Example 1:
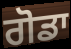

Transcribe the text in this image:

ਗੋਡਾ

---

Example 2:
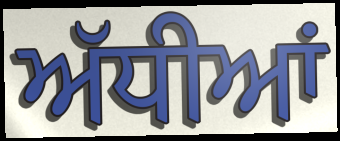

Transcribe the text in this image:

ਅੱਧੀਆਂ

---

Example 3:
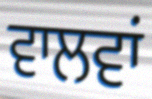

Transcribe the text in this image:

ਵਾਲਵਾਂ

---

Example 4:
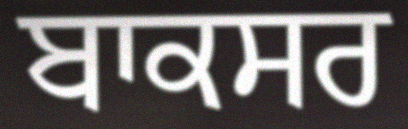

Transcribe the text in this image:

ਬਾਕਸਰ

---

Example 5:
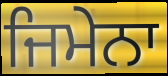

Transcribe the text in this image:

ਜਿਮੇਨਾ